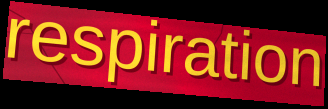
respiration